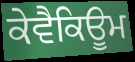
ਕੇਵੈਕਿਊਮ